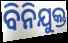
ବିନିଯୁକ୍ତ